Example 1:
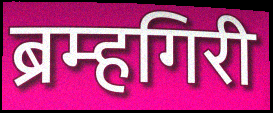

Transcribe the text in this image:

ब्रम्हगिरी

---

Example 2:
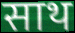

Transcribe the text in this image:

साथ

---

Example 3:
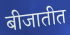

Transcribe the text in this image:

बीजातीत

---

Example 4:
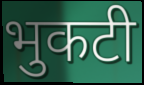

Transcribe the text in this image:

भुकटी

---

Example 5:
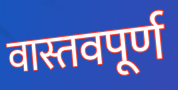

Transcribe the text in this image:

वास्तवपूर्ण